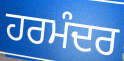
ਹਰਮੰਦਰ